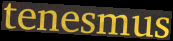
tenesmus